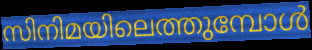
സിനിമയിലെത്തുമ്പോൾ